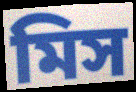
মিস